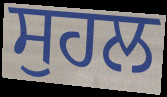
ਸੁਹਲ